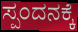
ಸ್ಪಂದನಕ್ಕೆ